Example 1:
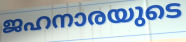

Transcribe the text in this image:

ജഹനാരയുടെ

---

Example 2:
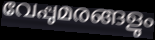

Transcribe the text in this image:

വേപ്പുമരങ്ങളും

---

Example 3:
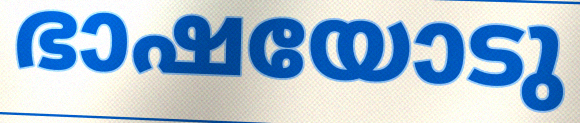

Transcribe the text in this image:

ഭാഷയോടു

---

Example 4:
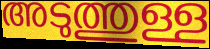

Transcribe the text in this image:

അടുത്തുള്ള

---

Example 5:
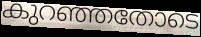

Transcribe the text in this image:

കുറഞ്ഞതോടെ